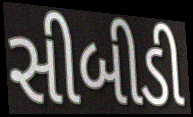
સીબીડી